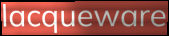
lacqueware